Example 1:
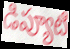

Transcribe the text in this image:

డిప్యూటి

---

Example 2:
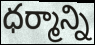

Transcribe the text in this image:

ధర్మాన్ని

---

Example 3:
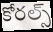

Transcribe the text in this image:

కోరల్స్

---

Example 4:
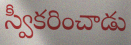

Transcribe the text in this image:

స్వీకరించాడు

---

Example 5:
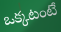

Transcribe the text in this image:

ఒక్కటంటే